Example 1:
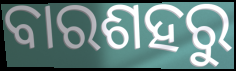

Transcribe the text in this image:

ବାରଶହରୁ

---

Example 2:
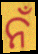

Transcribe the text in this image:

ନଁ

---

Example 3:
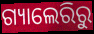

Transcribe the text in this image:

ଗ୍ୟାଲେରିରୁ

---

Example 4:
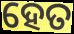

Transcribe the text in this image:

ହେତ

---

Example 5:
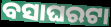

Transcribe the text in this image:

ବସାଘରଟା